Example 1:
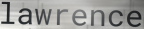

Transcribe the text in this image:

lawrence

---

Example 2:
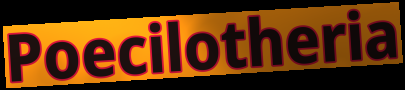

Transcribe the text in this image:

Poecilotheria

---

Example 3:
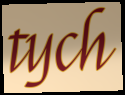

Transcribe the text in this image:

tych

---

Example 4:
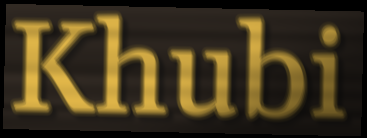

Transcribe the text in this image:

Khubi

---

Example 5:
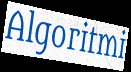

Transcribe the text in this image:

Algoritmi